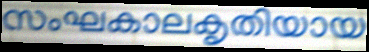
സംഘകാലകൃതിയായ